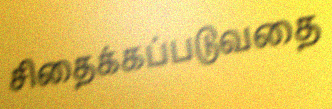
சிதைக்கப்படுவதை